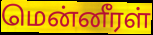
மென்னீரள்